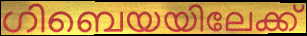
ഗിബെയയിലേക്ക്